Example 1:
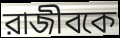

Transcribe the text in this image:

রাজীবকে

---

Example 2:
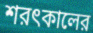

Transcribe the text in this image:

শরৎকালের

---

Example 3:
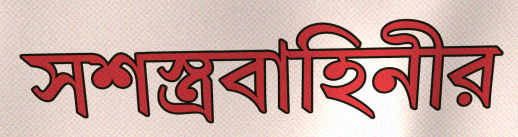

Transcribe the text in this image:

সশস্ত্রবাহিনীর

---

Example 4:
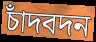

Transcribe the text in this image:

চাঁদবদন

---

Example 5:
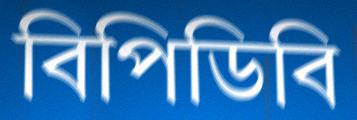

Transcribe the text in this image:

বিপিডিবি